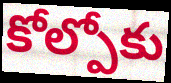
కోల్పోకు